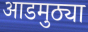
आडमुठ्या